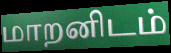
மாறனிடம்